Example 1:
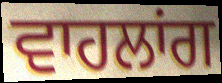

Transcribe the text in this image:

ਵਾਹਲਾਂਗ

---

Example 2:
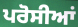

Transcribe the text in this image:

ਪਰੋਸੀਆਂ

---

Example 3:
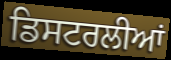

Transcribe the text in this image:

ਡਿਸਟਰਲੀਆਂ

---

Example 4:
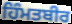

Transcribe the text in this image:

ਹਿੰਮਤਬੀਰ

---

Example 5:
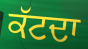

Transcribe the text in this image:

ਕੱਟਦਾ